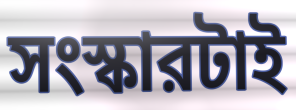
সংস্কারটাই